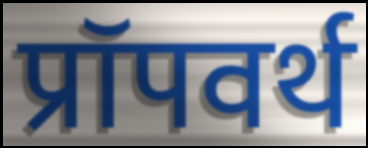
प्रॉपवर्थ